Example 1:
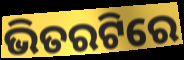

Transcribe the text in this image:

ଭିତରଟିରେ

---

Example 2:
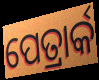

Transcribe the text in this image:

ପେତ୍ରାର୍କ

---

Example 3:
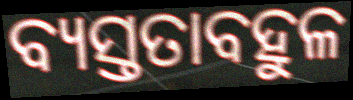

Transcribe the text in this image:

ବ୍ୟସ୍ତତାବହୁଳ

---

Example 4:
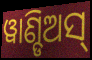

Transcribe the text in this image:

ୱାଣ୍ଡିଅସ୍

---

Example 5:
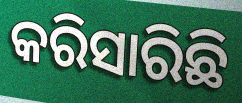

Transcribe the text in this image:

କରିସାରିଛି